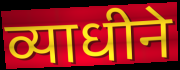
व्याधीने